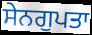
ਸੇਨਗੁਪਤਾ